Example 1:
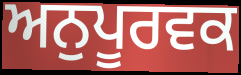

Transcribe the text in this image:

ਅਨੁਪੂਰਵਕ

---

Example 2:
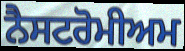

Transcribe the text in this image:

ਨੈਸਟਰੋਮੀਅਮ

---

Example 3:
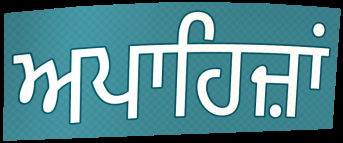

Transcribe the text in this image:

ਅਪਾਹਿਜ਼ਾਂ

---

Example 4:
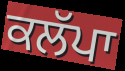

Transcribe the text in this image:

ਕਲੱਪਾ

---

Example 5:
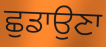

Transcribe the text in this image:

ਛੁਡਾਉਣਾ